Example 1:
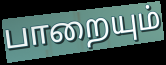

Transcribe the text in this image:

பாறையும்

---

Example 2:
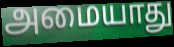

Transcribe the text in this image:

அமையாது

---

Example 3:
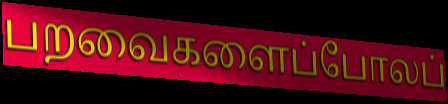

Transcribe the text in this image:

பறவைகளைப்போலப்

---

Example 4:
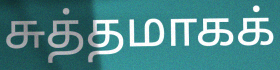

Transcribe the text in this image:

சுத்தமாகக்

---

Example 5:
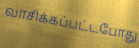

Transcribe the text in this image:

வாசிக்கப்பட்டபோது